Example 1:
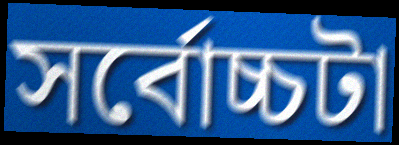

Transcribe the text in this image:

সর্বোচ্চটা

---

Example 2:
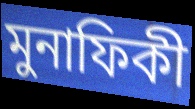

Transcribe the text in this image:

মুনাফিকী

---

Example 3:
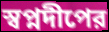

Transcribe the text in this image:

স্বপ্নদীপের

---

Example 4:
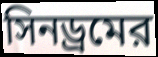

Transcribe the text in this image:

সিনড্রমের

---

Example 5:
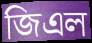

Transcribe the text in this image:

জিএল